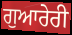
ਗੁਆਰੇਰੀ